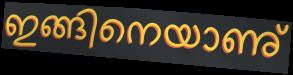
ഇങ്ങിനെയാണു്